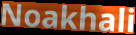
Noakhali